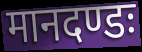
मानदण्डः